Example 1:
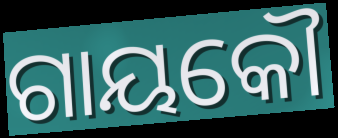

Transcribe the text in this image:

ଗାୟକୌ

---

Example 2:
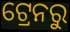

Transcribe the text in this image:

ଟ୍ରେନରୁ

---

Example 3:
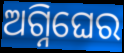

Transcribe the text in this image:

ଅଗ୍ନିଘେର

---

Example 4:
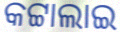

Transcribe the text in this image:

କଟ୍ଟାଲାଇ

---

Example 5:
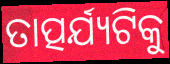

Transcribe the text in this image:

ତାତ୍ପର୍ଯ୍ୟଟିକୁ